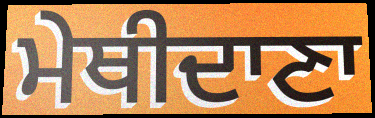
ਮੇਥੀਦਾਣਾ